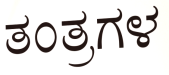
ತಂತ್ರಗಳ